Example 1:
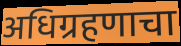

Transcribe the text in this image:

अधिग्रहणाचा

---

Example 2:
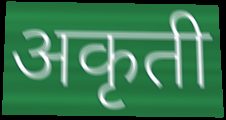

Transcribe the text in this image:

अकृती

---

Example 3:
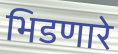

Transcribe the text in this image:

भिडणारे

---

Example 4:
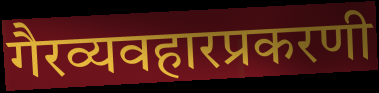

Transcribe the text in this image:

गैरव्यवहारप्रकरणी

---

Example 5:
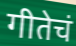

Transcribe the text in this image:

गीतेचं